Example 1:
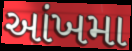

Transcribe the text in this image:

આંખમા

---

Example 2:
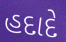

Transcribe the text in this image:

હદાદે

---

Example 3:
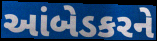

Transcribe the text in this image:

આંબેડકરને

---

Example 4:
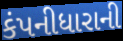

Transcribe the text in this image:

કંપનીધારાની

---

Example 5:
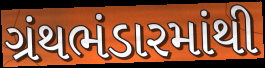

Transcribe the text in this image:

ગ્રંથભંડારમાંથી